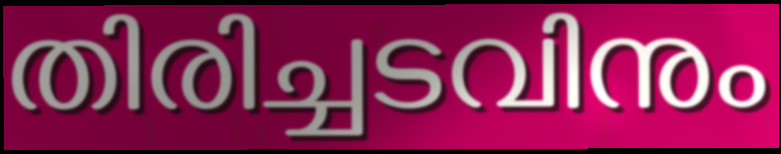
തിരിച്ചടവിനും